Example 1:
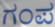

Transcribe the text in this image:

ಗಂಪ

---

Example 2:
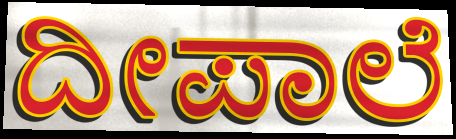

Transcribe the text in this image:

ದೀಪಾಲೆ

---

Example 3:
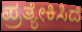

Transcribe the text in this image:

ಪ್ರತ್ಯೇಕಿಸಿದೆ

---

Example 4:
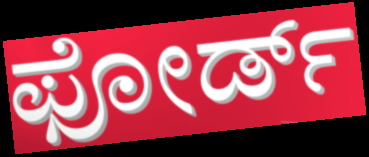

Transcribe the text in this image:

ಫೋರ್ಡ್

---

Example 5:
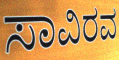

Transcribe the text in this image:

ಸಾವಿರವ